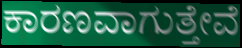
ಕಾರಣವಾಗುತ್ತೇವೆ